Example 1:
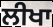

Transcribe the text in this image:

ਲੀਖਾ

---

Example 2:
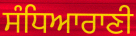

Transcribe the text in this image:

ਸੰਧਿਆਰਾਣੀ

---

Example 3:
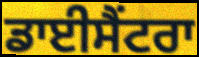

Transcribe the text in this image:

ਡਾਈਸੈਂਟਰਾ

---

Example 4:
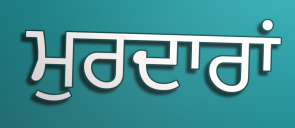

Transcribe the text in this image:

ਮੁਰਦਾਰਾਂ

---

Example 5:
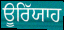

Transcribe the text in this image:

ਊਰਿੱਯਾਹ